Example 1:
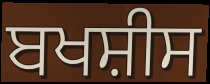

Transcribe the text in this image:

ਬਖਸ਼ੀਸ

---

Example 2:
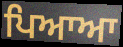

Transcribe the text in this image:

ਪਿਆਆ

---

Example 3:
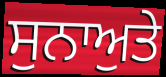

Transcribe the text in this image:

ਸੁਨਾਅੁਤੇ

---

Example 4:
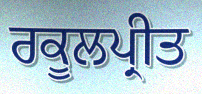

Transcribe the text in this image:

ਰਕੂਲਪ੍ਰੀਤ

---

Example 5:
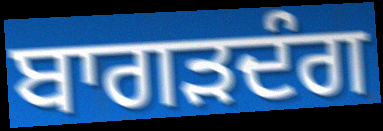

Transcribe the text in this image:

ਬਾਗੜਦੰਗ